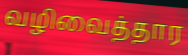
வழிவைத்தார